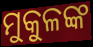
ମୁକୁଳଙ୍କ